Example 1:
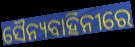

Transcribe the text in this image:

ସୈନ୍ୟବାହିନୀରେ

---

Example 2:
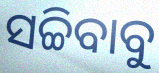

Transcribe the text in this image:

ସଚ୍ଚିବାବୁ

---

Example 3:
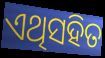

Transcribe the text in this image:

ଏଥିସହିତ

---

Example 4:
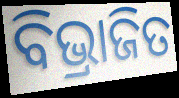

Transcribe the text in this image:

ବିଭ୍ରାଜିତ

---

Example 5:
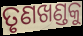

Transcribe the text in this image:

ତୃଣଖଣ୍ଡକୁ